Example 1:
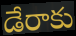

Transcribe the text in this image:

డేరాకు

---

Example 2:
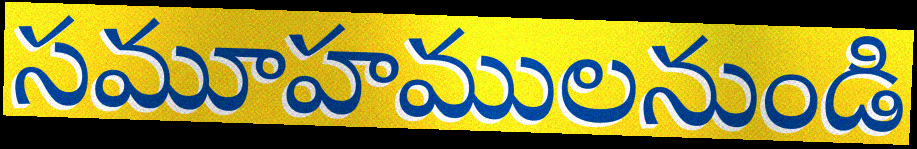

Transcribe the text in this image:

సమూహములనుండి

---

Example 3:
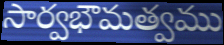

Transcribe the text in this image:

సార్వభౌమత్వము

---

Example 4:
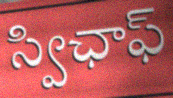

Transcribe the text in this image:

స్విఛాఫ్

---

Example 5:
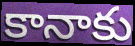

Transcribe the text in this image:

కానాకు